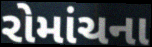
રોમાંચના